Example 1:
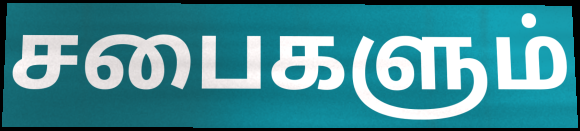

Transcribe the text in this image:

சபைகளும்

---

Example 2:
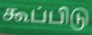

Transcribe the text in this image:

கூப்பிடு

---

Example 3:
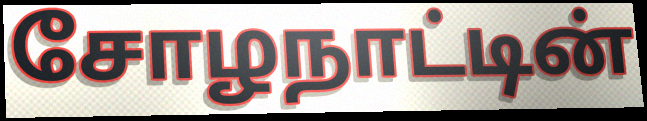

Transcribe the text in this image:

சோழநாட்டின்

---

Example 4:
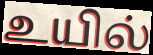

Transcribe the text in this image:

உயில்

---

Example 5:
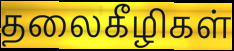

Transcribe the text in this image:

தலைகீழிகள்